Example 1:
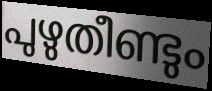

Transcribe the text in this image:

പുഴുതീണ്ടും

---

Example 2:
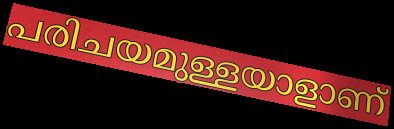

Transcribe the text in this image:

പരിചയമുള്ളയാളാണ്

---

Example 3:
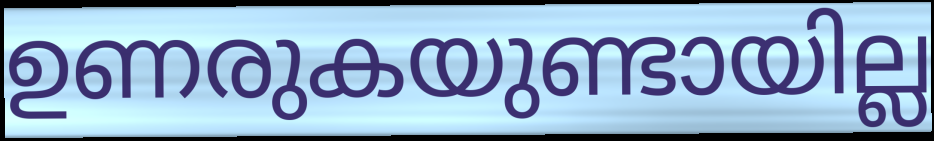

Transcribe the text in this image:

ഉണരുകയുണ്ടായില്ല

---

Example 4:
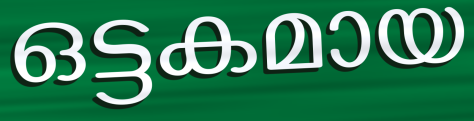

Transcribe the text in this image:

ഒട്ടകമായ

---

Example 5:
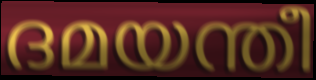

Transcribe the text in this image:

ദമയന്തീ